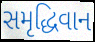
સમૃદ્ધિવાન